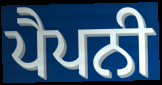
ਪੈਪਨੀ